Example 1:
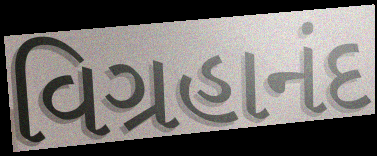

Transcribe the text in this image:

વિગ્રહાનંદ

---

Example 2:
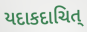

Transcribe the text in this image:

યદાકદાચિત્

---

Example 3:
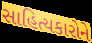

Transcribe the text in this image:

સાહિત્યકારોને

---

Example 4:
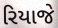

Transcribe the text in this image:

રિયાજે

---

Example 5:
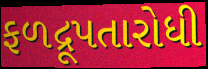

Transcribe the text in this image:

ફળદ્રૂપતારોધી